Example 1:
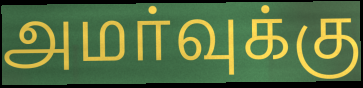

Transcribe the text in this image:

அமர்வுக்கு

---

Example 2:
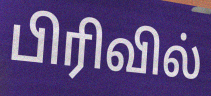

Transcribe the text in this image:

பிரிவில்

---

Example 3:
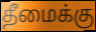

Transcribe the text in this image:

தீமைக்கு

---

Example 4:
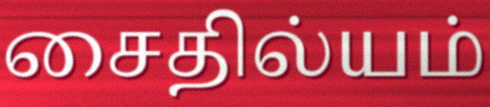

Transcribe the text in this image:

சைதில்யம்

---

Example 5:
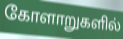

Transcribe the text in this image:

கோளாறுகளில்